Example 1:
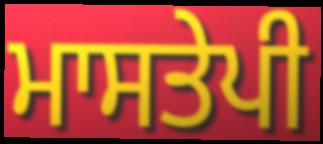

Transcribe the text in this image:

ਮਾਸਤੇਪੀ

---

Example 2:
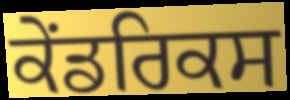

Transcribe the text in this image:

ਕੇਂਡਰਿਕਸ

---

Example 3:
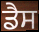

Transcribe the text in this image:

ਡੈਸ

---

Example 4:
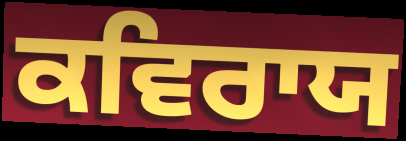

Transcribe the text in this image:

ਕਵਿਰਾਯ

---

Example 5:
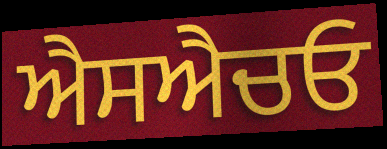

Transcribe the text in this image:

ਐਸਐਚਓ